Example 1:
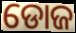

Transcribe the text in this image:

ଡୋଜ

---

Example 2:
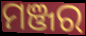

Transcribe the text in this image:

ମଞ୍ଜର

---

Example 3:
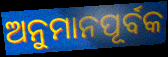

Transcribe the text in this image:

ଅନୁମାନପୂର୍ବକ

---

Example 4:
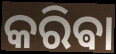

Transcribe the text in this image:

କରିଵା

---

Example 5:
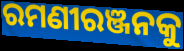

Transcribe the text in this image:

ରମଣୀରଞ୍ଜନକୁ